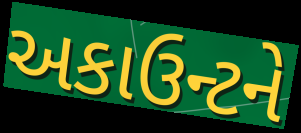
અકાઉન્ટને